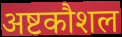
अष्टकौशल